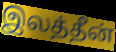
இலத்தீன்